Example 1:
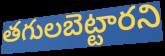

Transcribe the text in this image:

తగులబెట్టారని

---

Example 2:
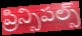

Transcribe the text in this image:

ప్రిన్సిపల్స్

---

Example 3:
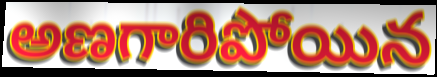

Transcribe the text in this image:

అణగారిపోయిన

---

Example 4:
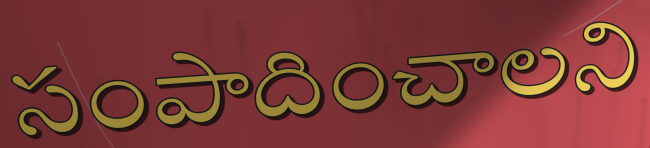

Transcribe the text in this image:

సంపాదించాలని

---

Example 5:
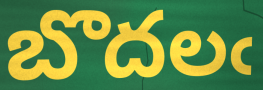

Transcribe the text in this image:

బొదలఁ